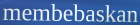
membebaskan